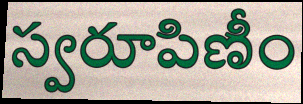
స్వరూపిణీం